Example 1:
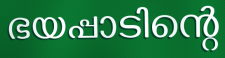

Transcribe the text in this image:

ഭയപ്പാടിന്റെ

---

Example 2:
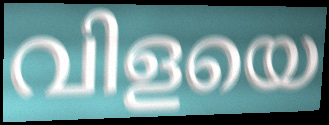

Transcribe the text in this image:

വിളയെ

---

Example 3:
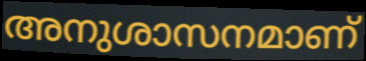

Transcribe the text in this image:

അനുശാസനമാണ്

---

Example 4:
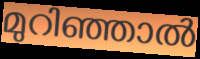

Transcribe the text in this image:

മുറിഞ്ഞാൽ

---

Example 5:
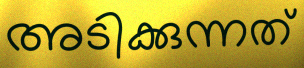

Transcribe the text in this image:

അടിക്കുന്നത്